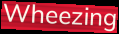
Wheezing